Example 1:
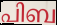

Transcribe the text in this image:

പിബ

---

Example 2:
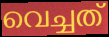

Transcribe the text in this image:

വെച്ചത്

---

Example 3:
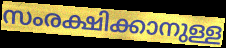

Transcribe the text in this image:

സംരക്ഷിക്കാനുള്ള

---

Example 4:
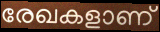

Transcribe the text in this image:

രേഖകളാണ്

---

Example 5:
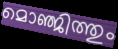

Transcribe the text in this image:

മൊഞ്ജിത്തും